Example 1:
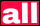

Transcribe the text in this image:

all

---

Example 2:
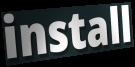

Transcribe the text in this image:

install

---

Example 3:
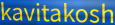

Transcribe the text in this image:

kavitakosh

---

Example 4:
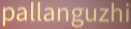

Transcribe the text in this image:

pallanguzhi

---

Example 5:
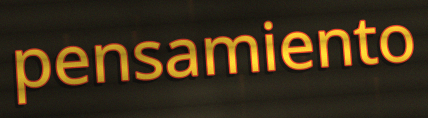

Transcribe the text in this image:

pensamiento